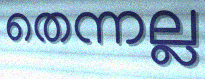
തെന്നല്ല